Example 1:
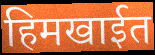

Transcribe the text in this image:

हिमखाईत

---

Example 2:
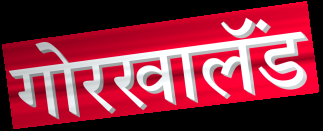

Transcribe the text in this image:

गोरखालॅंड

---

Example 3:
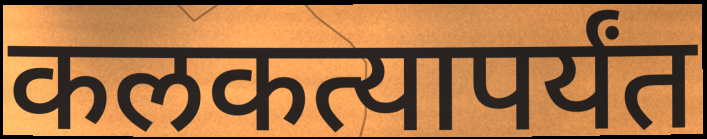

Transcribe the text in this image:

कलकत्यापर्यंत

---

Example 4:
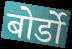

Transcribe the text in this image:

बोर्डो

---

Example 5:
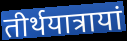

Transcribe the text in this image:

तीर्थयात्रायां